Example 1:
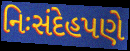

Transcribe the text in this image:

નિઃસંદેહપણે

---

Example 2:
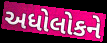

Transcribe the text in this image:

અધોલોકને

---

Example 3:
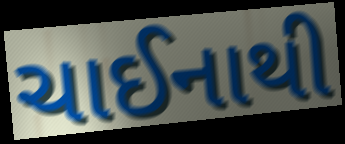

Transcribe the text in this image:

ચાઈનાથી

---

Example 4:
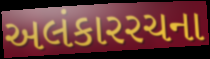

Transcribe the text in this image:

અલંકારરચના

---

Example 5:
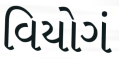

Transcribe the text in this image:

વિયોગં